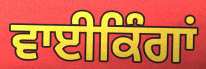
ਵਾਈਕਿੰਗਾਂ